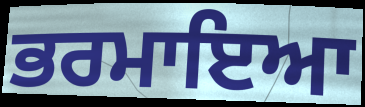
ਭਰਮਾਇਆ